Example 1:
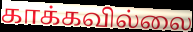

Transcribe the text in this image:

காக்கவில்லை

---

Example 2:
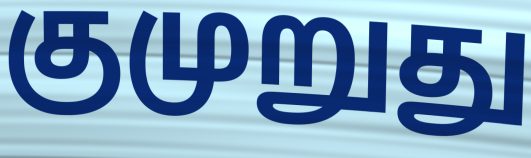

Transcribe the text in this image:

குமுறுது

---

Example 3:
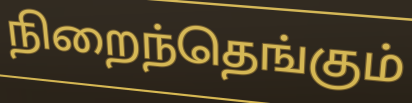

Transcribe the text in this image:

நிறைந்தெங்கும்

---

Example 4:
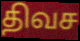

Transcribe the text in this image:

திவச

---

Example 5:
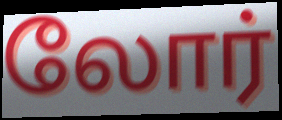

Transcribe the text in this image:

லோர்